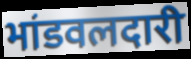
भांडवलदारी